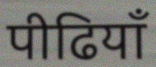
पीढियाँ